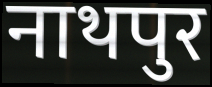
नाथपुर